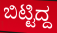
ಬಿಟ್ಟಿದ್ದ